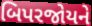
બિપરજોયને